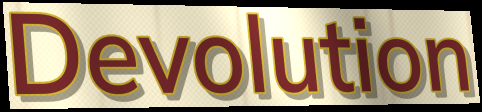
Devolution